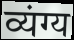
व्‍यंग्‍य